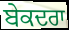
ਬੇਕਦਰਾ